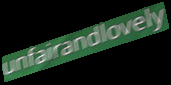
unfairandlovely